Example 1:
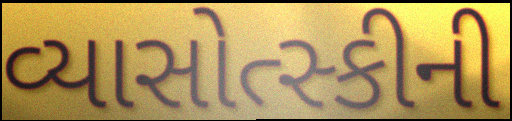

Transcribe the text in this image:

વ્યાસોત્સ્કીની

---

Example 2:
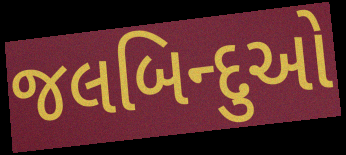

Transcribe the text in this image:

જલબિન્દુઓ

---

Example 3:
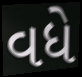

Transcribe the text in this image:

વધે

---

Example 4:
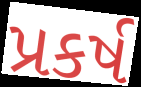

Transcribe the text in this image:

પ્રકર્ષ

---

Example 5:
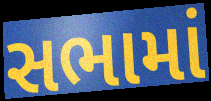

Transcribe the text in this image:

સભામાં